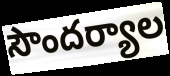
సౌందర్యాల